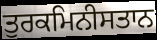
ਤੁਰਕਮਿਨੀਸਤਾਨ